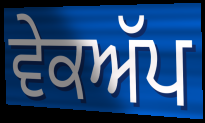
ਵੇਕਅੱਪ